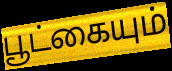
பூட்கையும்